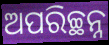
ଅପରିଚ୍ଛନ୍ନ